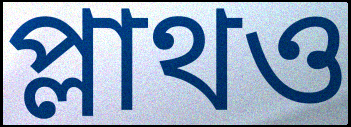
প্লাথও